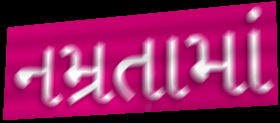
નમ્રતામાં